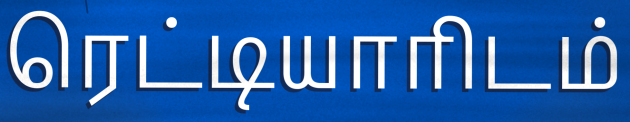
ரெட்டியாரிடம்